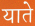
याते